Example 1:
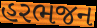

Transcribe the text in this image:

હરભજન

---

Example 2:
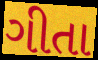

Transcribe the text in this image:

ગીતા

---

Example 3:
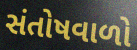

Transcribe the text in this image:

સંતોષવાળો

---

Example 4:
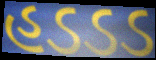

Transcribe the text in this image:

હડડડ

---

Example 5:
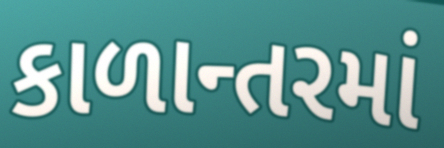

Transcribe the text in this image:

કાળાન્તરમાં